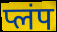
प्लंप